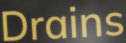
Drains